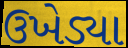
ઉખેડ્યા